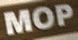
MOP